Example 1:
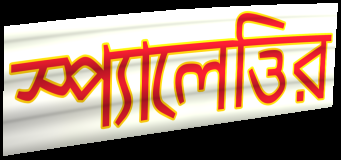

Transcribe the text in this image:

স্প্যালেত্তির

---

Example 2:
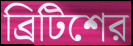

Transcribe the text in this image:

ব্রিটিশের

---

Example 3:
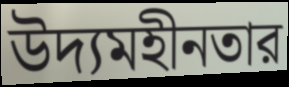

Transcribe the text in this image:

উদ্যমহীনতার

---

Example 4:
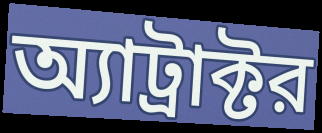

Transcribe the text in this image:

অ্যাট্রাক্টর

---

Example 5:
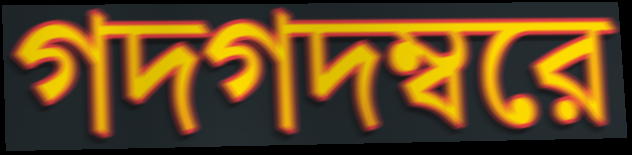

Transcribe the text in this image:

গদগদম্বরে